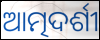
ଆତ୍ମଦର୍ଶୀ